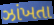
ઝાંખતા